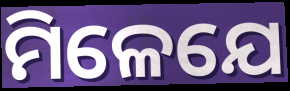
ମିଳେଯେ